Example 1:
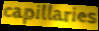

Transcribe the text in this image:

capillaries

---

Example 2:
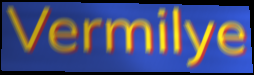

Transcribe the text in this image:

Vermilye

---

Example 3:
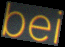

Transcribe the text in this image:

bei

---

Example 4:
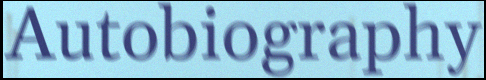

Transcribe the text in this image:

Autobiography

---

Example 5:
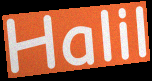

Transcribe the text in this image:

Halil